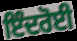
ਇੰਦਰੋਈ